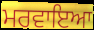
ਮਰਵਾਇਆ